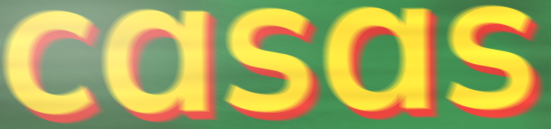
casas